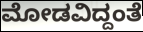
ಮೋಡವಿದ್ದಂತೆ